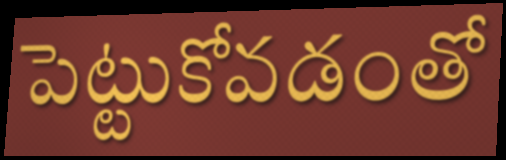
పెట్టుకోవడంతో